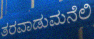
ತರವಾಡುಮನೆಲಿ